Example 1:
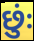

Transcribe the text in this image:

છુંઃ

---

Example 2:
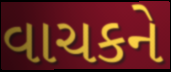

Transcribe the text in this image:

વાચકને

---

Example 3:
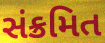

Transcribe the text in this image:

સંક્રમિત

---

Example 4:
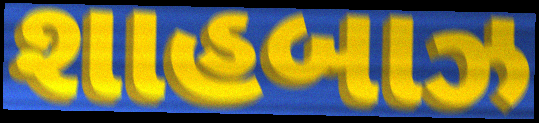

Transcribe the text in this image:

શાહબાઝ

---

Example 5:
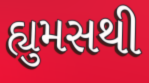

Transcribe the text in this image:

હ્યુમસથી